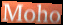
Moho